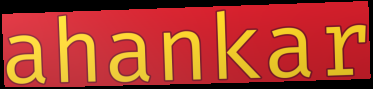
ahankar